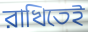
রাখিতেই